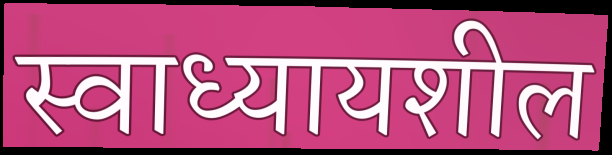
स्वाध्यायशील